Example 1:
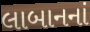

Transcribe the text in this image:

લાબાનનાં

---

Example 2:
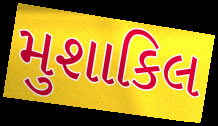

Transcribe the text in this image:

મુશાકિલ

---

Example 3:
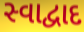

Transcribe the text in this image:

સ્વાદ્વાદ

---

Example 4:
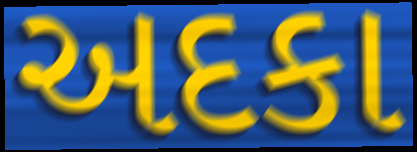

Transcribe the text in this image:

અદકા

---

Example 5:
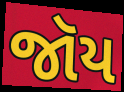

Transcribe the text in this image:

જૉય